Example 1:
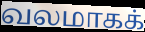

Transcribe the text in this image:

வலமாகக்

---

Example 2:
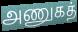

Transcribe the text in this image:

அணுகத்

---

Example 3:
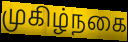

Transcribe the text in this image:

முகிழ்நகை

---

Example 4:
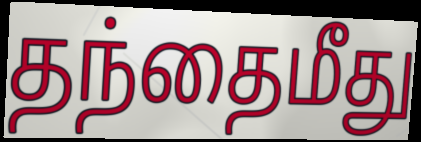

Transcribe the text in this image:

தந்தைமீது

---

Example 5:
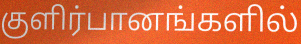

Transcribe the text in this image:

குளிர்பானங்களில்